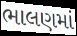
ભાલણમાં